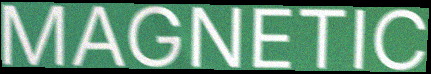
MAGNETIC